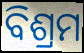
ବିଶ୍ରମ